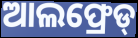
ଆଲଫ୍ରେଡ୍